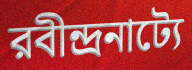
রবীন্দ্রনাট্যে